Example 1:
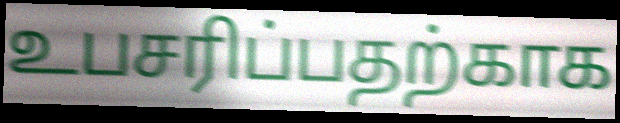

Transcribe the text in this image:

உபசரிப்பதற்காக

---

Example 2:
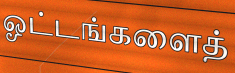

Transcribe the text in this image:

ஓட்டங்களைத்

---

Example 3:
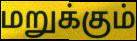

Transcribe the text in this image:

மறுக்கும்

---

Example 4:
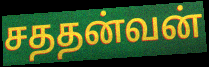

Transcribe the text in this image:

சததன்வன்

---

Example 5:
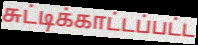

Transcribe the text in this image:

சுட்டிக்காட்டப்பட்ட